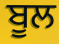
ਬੂਲ